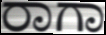
ರಾಗಾ